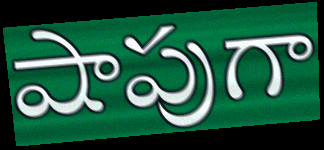
షాపుగా